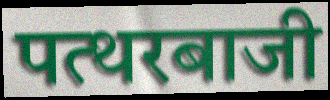
पत्‍थरबाजी